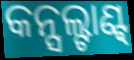
କନ୍ସଲ୍ଟାଣ୍ଟ୍